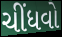
ચીંધવો